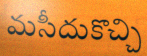
మసీదుకొచ్చి